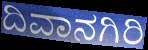
ದಿವಾನಗಿರಿ